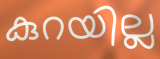
കുറയില്ല